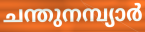
ചന്തുനമ്പ്യാർ